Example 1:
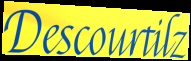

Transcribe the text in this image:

Descourtilz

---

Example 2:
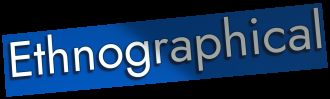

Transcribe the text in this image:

Ethnographical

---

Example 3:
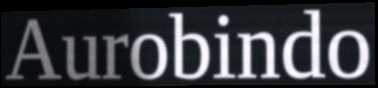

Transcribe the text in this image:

Aurobindo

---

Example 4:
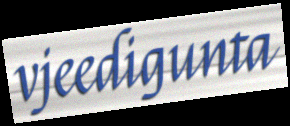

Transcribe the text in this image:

vjeedigunta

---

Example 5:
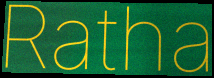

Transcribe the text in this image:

Ratha